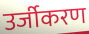
उर्जीकरण